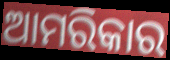
ଆମରିକାର